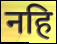
नहि